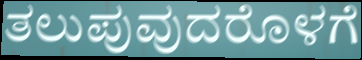
ತಲುಪುವುದರೊಳಗೆ